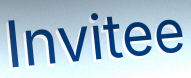
Invitee